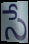
సే